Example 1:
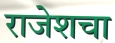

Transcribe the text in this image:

राजेशचा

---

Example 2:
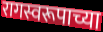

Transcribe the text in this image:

रागस्वरूपाच्या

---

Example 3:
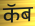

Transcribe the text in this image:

कॅब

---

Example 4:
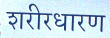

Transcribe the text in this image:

शरीरधारण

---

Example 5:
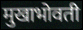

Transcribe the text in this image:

मुखाभोवती